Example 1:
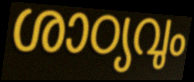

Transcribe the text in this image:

ശാഠ്യവും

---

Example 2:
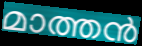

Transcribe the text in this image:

മാത്തൻ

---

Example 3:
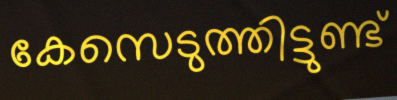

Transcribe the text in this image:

കേസെടുത്തിട്ടുണ്ട്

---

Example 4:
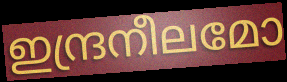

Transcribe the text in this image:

ഇന്ദ്രനീലമോ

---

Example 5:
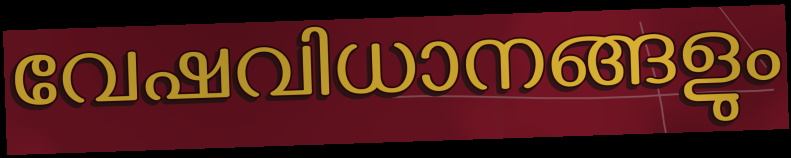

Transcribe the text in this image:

വേഷവിധാനങ്ങളും